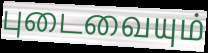
புடைவையும்